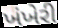
ખંખેરી